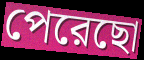
পেরেছো